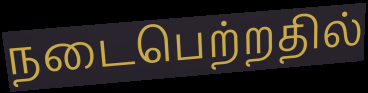
நடைபெற்றதில்